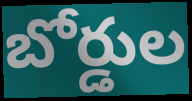
బోర్డుల